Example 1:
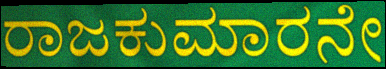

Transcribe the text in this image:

ರಾಜಕುಮಾರನೇ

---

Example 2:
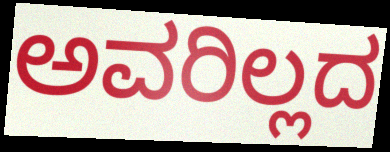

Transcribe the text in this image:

ಅವರಿಲ್ಲದ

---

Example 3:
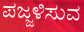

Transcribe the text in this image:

ಪಜ್ಜಳಿಸುವ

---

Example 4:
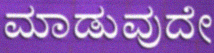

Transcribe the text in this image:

ಮಾಡುವುದೇ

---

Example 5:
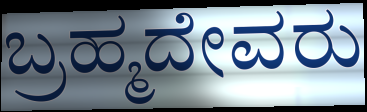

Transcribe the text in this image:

ಬ್ರಹ್ಮದೇವರು